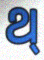
ଥ୍